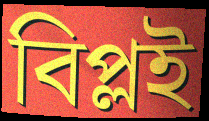
বিপ্লই